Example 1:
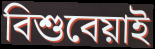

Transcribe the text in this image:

বিশুবেয়াই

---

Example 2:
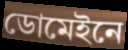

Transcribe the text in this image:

ডোমেইনে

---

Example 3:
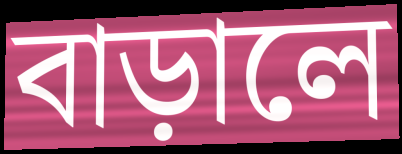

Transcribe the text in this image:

বাড়ালে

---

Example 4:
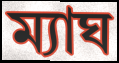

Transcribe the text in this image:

ম্যাঘ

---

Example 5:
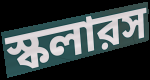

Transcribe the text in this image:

স্কলারস